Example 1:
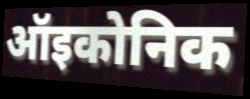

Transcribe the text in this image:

ऑइकोनिक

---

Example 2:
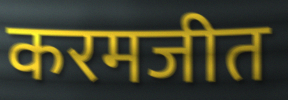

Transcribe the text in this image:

करमजीत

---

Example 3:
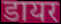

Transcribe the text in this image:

डायर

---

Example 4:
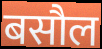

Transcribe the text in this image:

बसौल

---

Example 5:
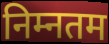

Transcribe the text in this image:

निम्नतम